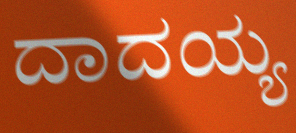
ದಾದಯ್ಯ